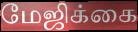
மேஜிக்கை